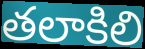
తలాకిలి